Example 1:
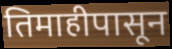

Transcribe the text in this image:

तिमाहीपासून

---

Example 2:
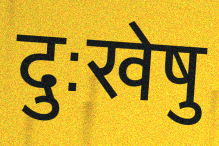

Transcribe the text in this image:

दुःखेषु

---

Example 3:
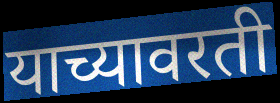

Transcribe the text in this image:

याच्यावरती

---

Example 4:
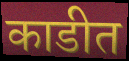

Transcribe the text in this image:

काडीत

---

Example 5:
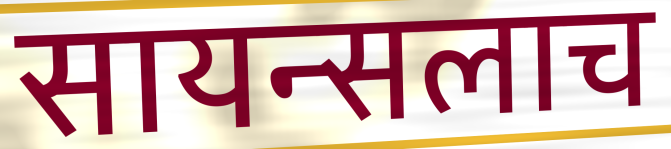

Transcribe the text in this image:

सायन्सलाच